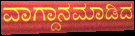
ವಾಗ್ದಾನಮಾಡಿದ